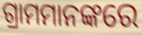
ଗ୍ରାମମାନଙ୍କରେ